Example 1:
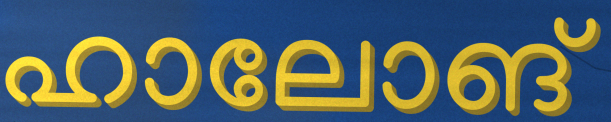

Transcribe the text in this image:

ഹാലോങ്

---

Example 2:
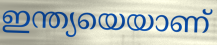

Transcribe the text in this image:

ഇന്ത്യയെയാണ്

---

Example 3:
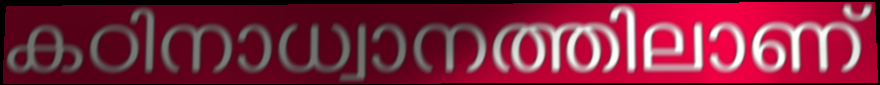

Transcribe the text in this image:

കഠിനാധ്വാനത്തിലാണ്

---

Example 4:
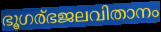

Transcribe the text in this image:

ഭൂഗര്ഭജലവിതാനം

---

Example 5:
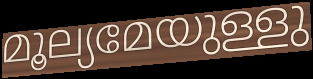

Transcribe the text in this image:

മൂല്യമേയുള്ളു